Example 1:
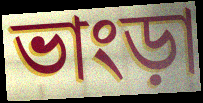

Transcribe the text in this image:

ভাংড়া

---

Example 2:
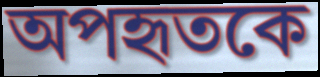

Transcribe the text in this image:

অপহৃতকে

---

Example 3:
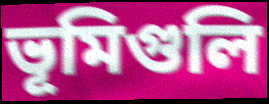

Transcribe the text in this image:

ভূমিগুলি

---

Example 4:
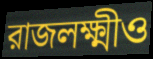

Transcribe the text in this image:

রাজলক্ষ্মীও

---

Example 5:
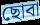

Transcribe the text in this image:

ছোবা